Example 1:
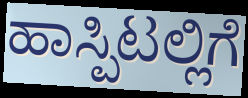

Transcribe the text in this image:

ಹಾಸ್ಪಿಟಲ್ಲಿಗೆ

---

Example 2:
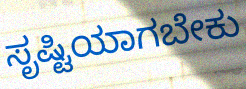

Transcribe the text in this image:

ಸೃಷ್ಟಿಯಾಗಬೇಕು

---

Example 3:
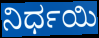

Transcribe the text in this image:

ನಿರ್ಧಯಿ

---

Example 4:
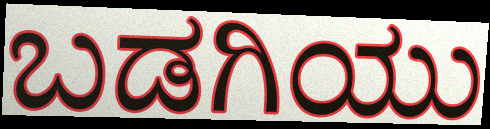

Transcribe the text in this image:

ಬಡಗಿಯು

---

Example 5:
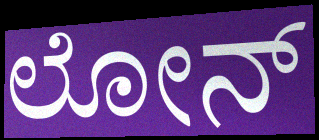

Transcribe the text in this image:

ಲೋನ್